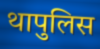
थापुलिस